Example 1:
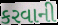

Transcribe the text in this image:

કરવાની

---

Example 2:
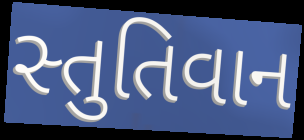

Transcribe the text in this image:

સ્તુતિવાન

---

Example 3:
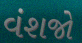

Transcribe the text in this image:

વંશજો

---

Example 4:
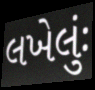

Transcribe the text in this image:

લખેલુંઃ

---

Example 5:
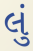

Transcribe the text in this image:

લું